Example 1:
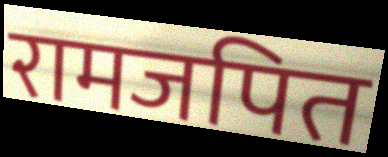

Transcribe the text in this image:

रामजपित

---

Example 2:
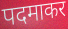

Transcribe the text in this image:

पदमाकर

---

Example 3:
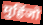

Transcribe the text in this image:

मुहिंजो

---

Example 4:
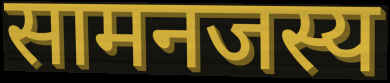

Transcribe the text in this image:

सामनजस्य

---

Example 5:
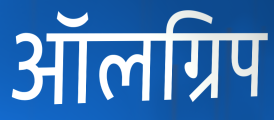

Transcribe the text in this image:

ऑलग्रिप